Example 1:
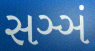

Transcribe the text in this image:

સઞ્ઞં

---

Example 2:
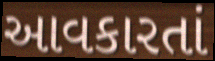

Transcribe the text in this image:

આવકારતાં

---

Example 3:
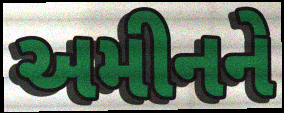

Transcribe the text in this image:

અમીનને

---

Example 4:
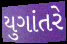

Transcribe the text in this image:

યુગાંતરે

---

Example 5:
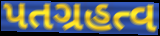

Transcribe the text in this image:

પતગ્રહત્વ